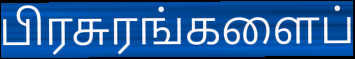
பிரசுரங்களைப்